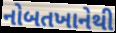
નોબતખાનેથી